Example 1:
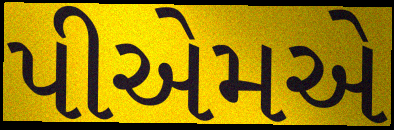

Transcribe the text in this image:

પીએમએ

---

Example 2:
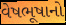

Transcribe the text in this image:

વેષભૂષાનો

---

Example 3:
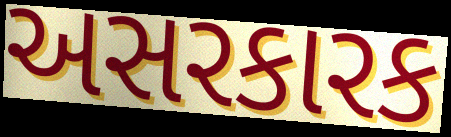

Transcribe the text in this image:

અસરકારક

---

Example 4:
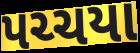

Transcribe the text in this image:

પચ્ચયા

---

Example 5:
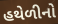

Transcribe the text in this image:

હથેળીનો